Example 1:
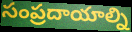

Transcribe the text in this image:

సంప్రదాయాల్ని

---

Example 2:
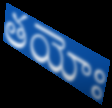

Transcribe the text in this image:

తయోః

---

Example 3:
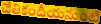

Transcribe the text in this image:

చేతికందీయనుంటి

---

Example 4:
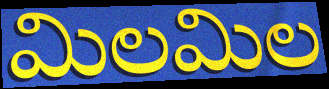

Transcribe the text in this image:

మిలమిల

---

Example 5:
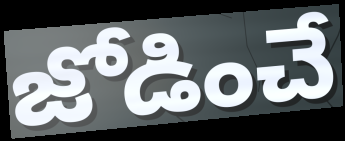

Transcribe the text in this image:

జోడించే